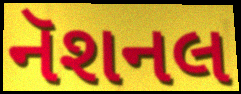
નૅશનલ